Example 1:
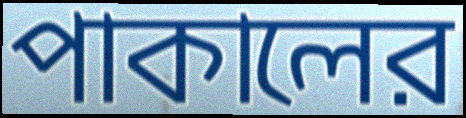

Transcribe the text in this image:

পাকালের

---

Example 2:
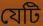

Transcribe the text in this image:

যেটি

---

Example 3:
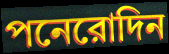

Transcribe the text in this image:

পনেরোদিন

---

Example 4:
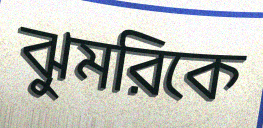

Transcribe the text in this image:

ঝুমরিকে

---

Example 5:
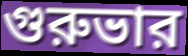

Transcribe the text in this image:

গুরুভার